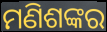
ମଣିଶଙ୍କର